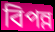
বিপন্ন